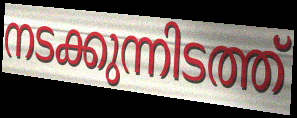
നടക്കുന്നിടത്ത്